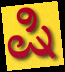
ಷಿ